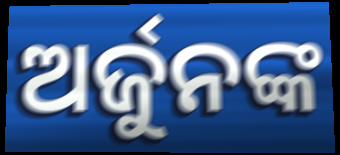
ଅର୍ଜୁନଙ୍କ